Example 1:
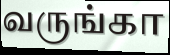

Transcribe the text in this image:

வருங்கா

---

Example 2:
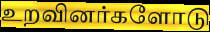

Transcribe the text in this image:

உறவினர்களோடு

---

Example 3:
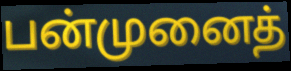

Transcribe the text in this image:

பன்முனைத்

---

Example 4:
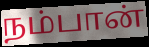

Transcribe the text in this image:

நம்பான்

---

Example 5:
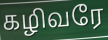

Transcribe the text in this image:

கழிவரே